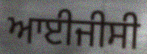
ਆਈਜੀਸੀ